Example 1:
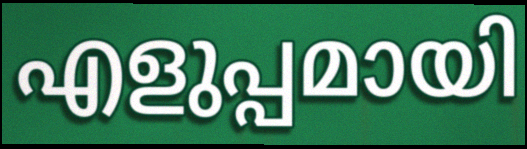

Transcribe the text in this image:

എളുപ്പമായി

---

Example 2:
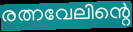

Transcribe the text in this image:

രത്നവേലിന്റെ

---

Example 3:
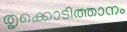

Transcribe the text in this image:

തൃക്കൊടിത്താനം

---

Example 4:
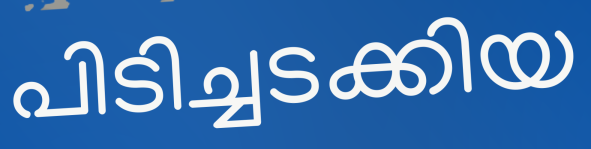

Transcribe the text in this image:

പിടിച്ചടക്കിയ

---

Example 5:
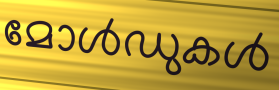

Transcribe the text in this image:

മോൾഡുകൾ